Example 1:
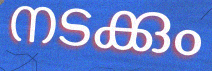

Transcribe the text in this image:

നടക്കും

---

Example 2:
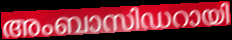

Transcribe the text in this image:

അംബാസിഡറായി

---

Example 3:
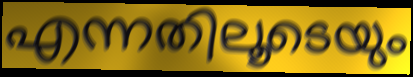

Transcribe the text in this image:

എന്നതിലൂടെയും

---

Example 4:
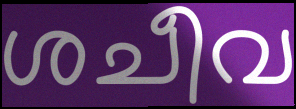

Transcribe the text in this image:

ശചീവ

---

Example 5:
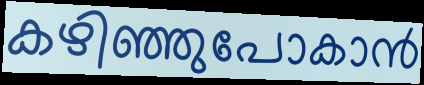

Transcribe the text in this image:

കഴിഞ്ഞുപോകാൻ